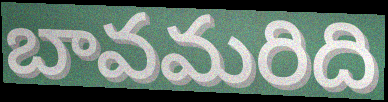
బావమరిది